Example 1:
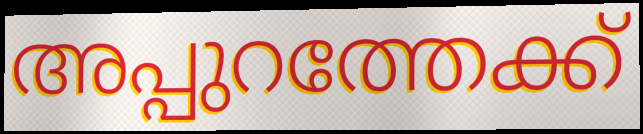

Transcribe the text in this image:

അപ്പുറത്തേക്ക്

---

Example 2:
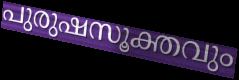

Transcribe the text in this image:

പുരുഷസൂക്തവും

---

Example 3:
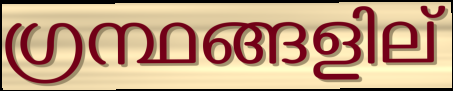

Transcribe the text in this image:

ഗ്രന്ഥങ്ങളില്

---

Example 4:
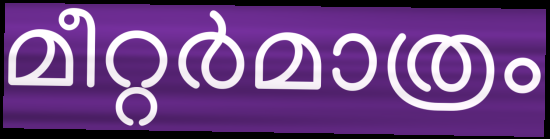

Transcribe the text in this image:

മീറ്റർമാത്രം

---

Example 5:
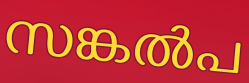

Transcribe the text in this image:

സങ്കൽപ